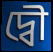
দ্বৌ